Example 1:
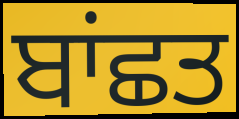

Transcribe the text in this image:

ਬਾਂਛਤ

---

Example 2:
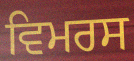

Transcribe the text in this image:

ਵਿਮਰਸ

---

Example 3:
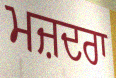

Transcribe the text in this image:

ਮਜ਼ਦਰਾ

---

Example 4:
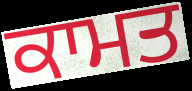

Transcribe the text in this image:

ਕਾਮਤ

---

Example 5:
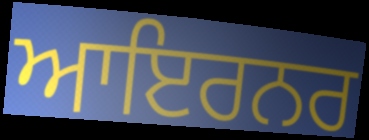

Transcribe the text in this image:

ਆਇਰਨਰ